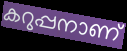
കറുപ്പനാണ്